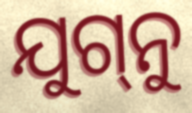
ଯୁଗ୍‌ନୁ